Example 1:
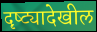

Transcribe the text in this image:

दृष्ट्यादेखील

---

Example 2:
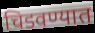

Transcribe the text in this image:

चिडवण्यात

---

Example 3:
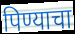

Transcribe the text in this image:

पिण्याचा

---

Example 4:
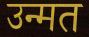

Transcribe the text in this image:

उन्मत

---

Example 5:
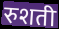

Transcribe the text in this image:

रुशती